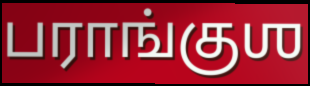
பராங்குஶ